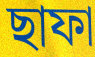
ছাফা